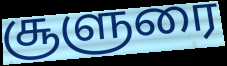
சூளுரை